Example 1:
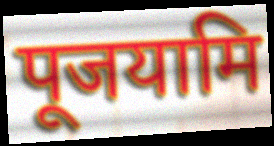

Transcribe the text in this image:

पूजयामि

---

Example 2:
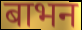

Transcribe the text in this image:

बाभन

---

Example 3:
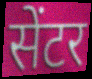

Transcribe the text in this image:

सेंटर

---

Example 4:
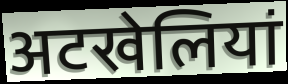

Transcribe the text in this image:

अटखेलियां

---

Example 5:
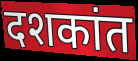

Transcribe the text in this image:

दशकांत